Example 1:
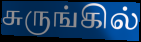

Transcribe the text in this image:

சுருங்கில்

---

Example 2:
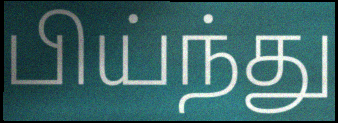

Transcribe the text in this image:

பிய்ந்து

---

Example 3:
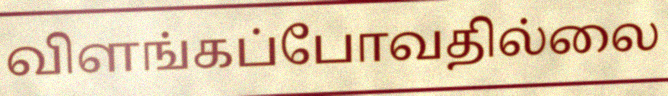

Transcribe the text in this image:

விளங்கப்போவதில்லை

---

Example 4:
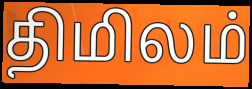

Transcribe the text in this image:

திமிலம்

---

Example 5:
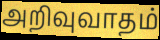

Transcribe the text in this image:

அறிவுவாதம்